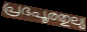
പ്രഭപൂരതുല്യ